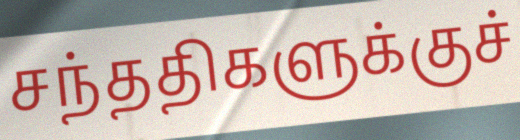
சந்ததிகளுக்குச்